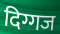
दिग्गज